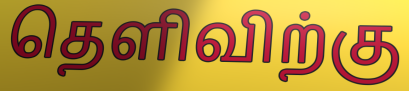
தெளிவிற்கு